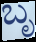
ಬೃ